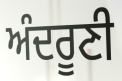
ਅੰਦਰੂਣੀ